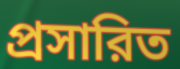
প্রসারিত